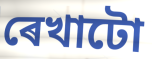
ৰেখাটো